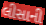
લીસાની